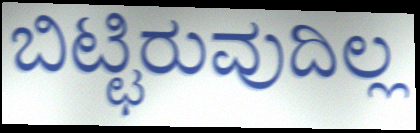
ಬಿಟ್ಟಿರುವುದಿಲ್ಲ